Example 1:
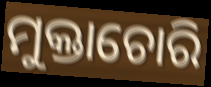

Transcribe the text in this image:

ମୁକ୍ତାଚୋରି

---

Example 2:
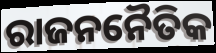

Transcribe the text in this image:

ରାଜନନୈତିକ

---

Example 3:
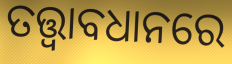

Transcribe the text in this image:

ତତ୍ତ୍ବାବଧାନରେ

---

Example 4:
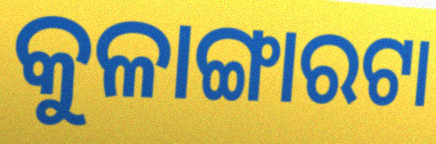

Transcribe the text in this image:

କୁଳାଙ୍ଗାରଟା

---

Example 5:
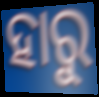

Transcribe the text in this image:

ହାରୁ